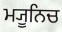
ਮ੍ਯੂਨਿਚ